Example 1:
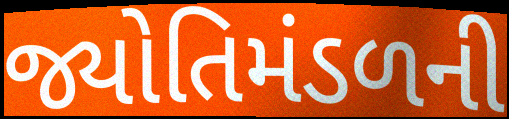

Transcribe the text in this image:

જ્યોતિમંડળની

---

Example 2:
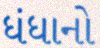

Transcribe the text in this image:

ધંધાનો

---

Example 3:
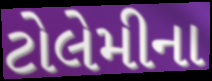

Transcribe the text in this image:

ટોલેમીના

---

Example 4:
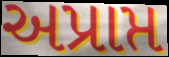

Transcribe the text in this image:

અપ્રાપ્ત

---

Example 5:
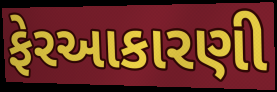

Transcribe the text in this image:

ફેરઆકારણી